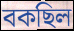
বকছিল